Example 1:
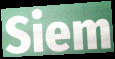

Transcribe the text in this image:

Siem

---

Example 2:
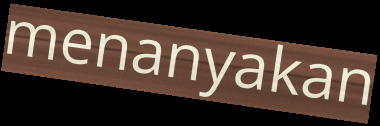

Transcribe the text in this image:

menanyakan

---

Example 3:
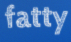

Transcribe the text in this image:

fatty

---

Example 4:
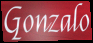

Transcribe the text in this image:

Gonzalo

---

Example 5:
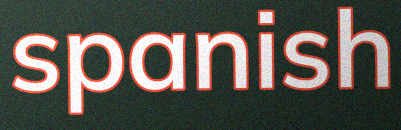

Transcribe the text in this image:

spanish